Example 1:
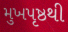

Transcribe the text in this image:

મુખપૃષ્ઠથી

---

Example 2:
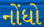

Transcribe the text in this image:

નોંધો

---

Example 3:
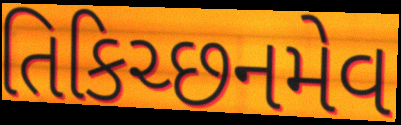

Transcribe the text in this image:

તિકિચ્છનમેવ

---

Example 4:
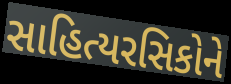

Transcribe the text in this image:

સાહિત્યરસિકોને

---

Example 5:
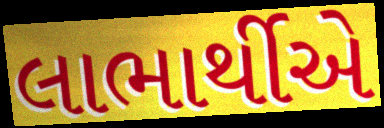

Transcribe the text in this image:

લાભાર્થીએ